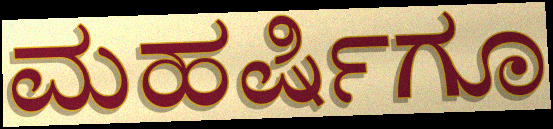
ಮಹರ್ಷಿಗೂ